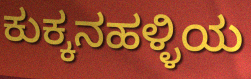
ಕುಕ್ಕನಹಳ್ಳಿಯ